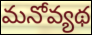
మనోవ్యథ